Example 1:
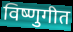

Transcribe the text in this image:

विष्णुगीत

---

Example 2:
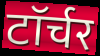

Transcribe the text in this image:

टॉर्चर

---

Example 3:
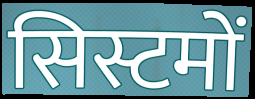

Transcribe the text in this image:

सिस्टमों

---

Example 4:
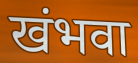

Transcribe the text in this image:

खंभवा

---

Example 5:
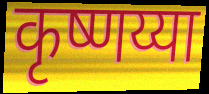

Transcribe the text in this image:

कृष्णय्या